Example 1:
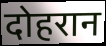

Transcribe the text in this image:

दोहरान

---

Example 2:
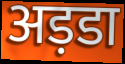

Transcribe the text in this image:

अड़डा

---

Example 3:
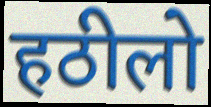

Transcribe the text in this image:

हठीलो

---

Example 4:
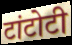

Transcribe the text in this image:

टांटोटी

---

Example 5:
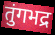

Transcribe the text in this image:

तुंगभद्र